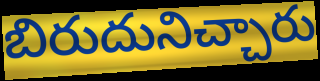
బిరుదునిచ్చారు